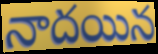
నాదయిన